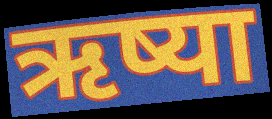
ऋष्या